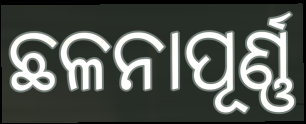
ଛଳନାପୂର୍ଣ୍ଣ